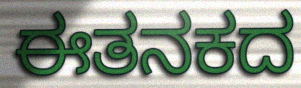
ಈತನಕದ